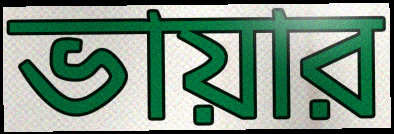
ভায়ার